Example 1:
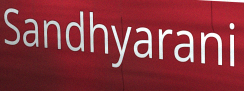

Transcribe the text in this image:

Sandhyarani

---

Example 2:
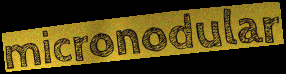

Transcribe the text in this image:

micronodular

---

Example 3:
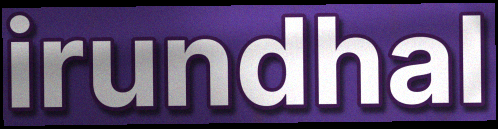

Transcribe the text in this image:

irundhal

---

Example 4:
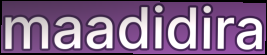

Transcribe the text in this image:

maadidira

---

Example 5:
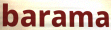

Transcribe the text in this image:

barama